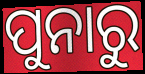
ପୁନାରୁ